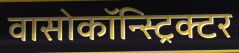
वासोकॉन्स्ट्रिक्टर